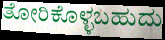
ತೋರಿಕೊಳ್ಳಬಹುದು